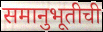
समानुभूतीची